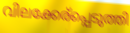
വിലക്കേര്പ്പെടുത്തി